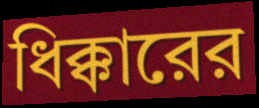
ধিক্কারের